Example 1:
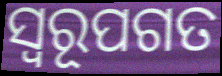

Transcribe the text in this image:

ସ୍ଵରୂପଗତ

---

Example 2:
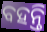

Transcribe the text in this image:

ବହନ୍ତି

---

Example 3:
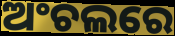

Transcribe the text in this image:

ଅଂଚଲରେ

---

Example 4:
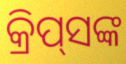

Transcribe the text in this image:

କ୍ରିପ୍‌ସଙ୍କ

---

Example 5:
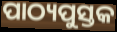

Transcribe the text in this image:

ପାଠ୍ୟପୁସ୍ତକ